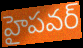
హైపవర్